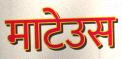
माटेउस